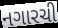
નગારચી